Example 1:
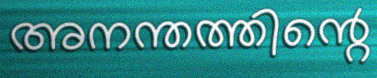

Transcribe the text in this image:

അനന്തത്തിന്റെ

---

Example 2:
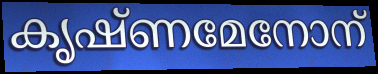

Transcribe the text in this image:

കൃഷ്ണമേനോന്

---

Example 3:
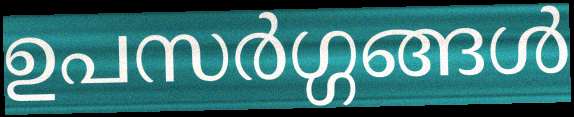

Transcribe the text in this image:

ഉപസർഗ്ഗങ്ങൾ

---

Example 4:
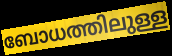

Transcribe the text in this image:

ബോധത്തിലുള്ള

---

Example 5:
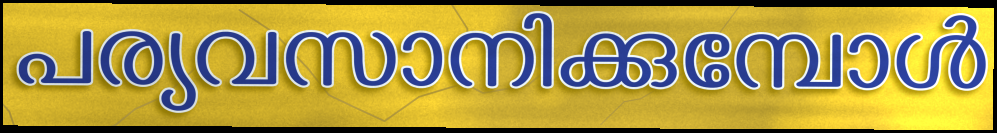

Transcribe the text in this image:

പര്യവസാനിക്കുമ്പോൾ